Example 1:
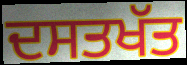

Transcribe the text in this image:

ਦਸਤਖੱਤ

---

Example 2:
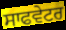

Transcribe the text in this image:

ਸਾਫਵੇਟਰ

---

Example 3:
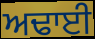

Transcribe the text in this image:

ਅਢਾਈ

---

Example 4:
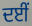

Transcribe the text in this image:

ਦਈਂ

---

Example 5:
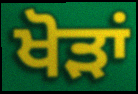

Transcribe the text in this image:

ਖੋੜਾਂ